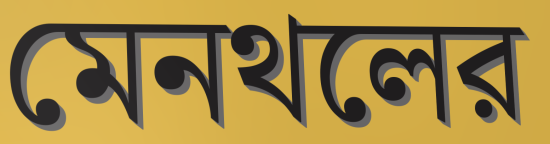
মেনথলের